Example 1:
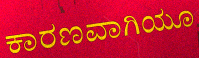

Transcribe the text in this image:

ಕಾರಣವಾಗಿಯೂ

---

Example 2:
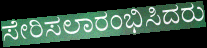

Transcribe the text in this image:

ಸೇರಿಸಲಾರಂಭಿಸಿದರು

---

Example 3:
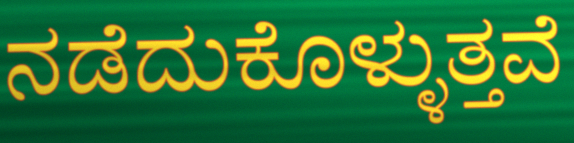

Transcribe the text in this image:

ನಡೆದುಕೊಳ್ಳುತ್ತವೆ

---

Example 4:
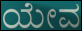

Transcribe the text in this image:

ಯೇವ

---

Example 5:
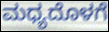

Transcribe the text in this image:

ಮಧ್ಯದೊಳಗೆ